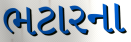
ભટારના